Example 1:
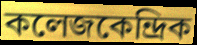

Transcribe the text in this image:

কলেজকেন্দ্রিক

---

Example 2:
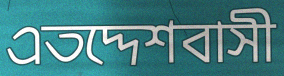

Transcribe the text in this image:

এতদ্দেশবাসী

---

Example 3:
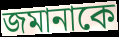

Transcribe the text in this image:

জমানাকে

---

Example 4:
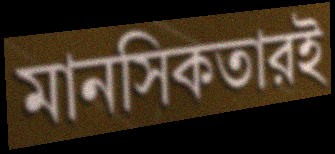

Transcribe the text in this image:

মানসিকতারই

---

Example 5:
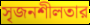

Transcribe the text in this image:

সৃজনশীলতার